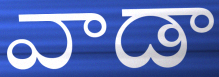
వాడా